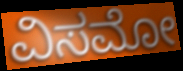
ವಿಸಮೋ